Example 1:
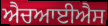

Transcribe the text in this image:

ਐਚਆਈਐਸ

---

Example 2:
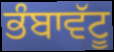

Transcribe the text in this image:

ਭੰਬਾਵੱਟੂ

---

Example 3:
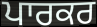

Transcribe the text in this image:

ਪਾਰਕਰ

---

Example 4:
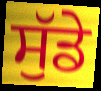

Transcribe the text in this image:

ਸੁੱਡੇ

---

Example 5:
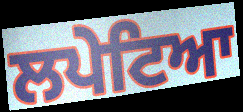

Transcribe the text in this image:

ਲਪੇਟਿਆ